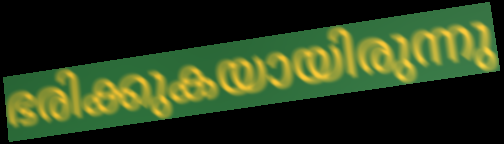
ഭരിക്കുകയായിരുന്നു